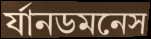
র্যানডমনেস